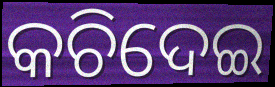
କଚିଦେଇ